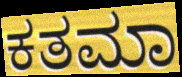
ಕತಮಾ